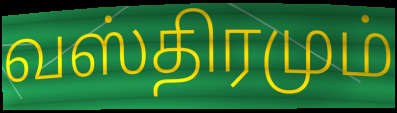
வஸ்திரமும்